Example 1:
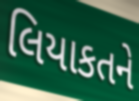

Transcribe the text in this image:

લિયાકતને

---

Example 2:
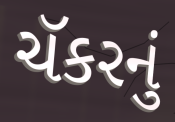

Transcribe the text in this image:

ચૅકરનું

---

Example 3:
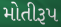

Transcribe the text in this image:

મોતીરૂપ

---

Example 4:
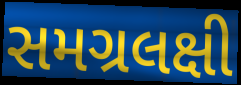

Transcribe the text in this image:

સમગ્રલક્ષી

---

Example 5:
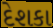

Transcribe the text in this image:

દેશકા